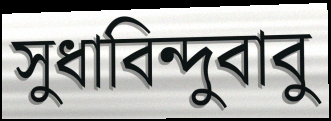
সুধাবিন্দুবাবু